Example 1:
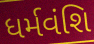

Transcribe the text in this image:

ધર્મવંશિ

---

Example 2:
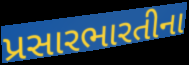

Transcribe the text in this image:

પ્રસારભારતીના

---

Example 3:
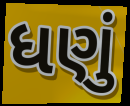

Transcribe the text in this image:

ધણું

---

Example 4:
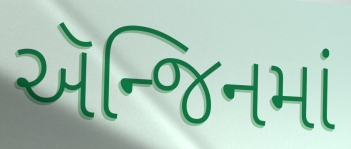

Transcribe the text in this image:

ઍન્જિનમાં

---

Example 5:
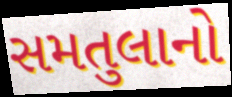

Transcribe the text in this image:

સમતુલાનો